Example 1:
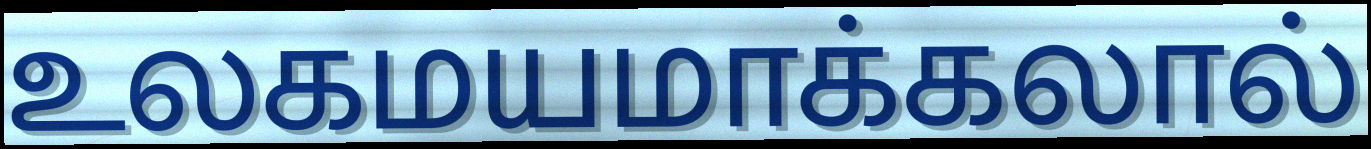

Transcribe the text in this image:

உலகமயமாக்கலால்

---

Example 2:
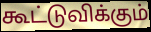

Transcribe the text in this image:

கூட்டுவிக்கும்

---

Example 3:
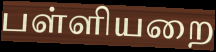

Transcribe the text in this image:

பள்ளியறை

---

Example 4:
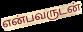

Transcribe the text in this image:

என்பவருடன்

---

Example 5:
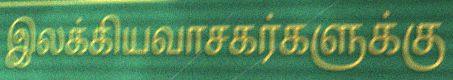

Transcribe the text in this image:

இலக்கியவாசகர்களுக்கு